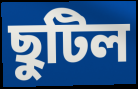
ছুটিল